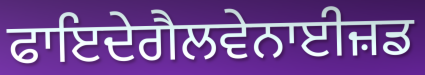
ਫਾਇਦੇਗੈਲਵੇਨਾਈਜ਼ਡ